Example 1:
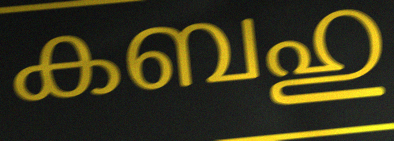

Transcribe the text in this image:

കബഹു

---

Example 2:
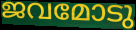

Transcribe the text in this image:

ജവമോടു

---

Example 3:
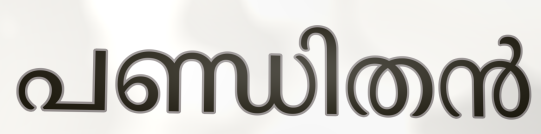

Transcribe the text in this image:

പണ്ഡിതൻ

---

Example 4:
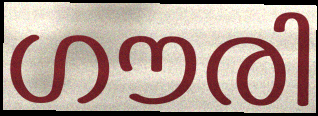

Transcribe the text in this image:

ഗൗരി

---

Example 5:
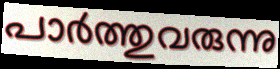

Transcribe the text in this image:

പാർത്തുവരുന്നു